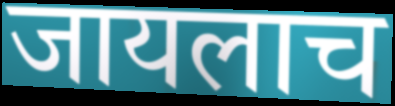
जायलाच